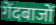
गेंदबाजों